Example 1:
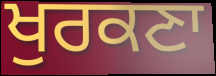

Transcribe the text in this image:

ਖੁਰਕਣਾ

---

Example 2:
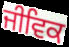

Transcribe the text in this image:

ਜੀਵਿਕ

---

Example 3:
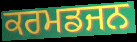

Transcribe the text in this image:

ਕਰਮਡਜਨ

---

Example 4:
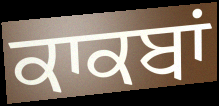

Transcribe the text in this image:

ਕਾਕਬਾਂ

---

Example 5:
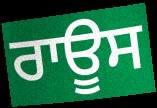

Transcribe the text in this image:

ਰਾਊਸ